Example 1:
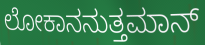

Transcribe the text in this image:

ಲೋಕಾನನುತ್ತಮಾನ್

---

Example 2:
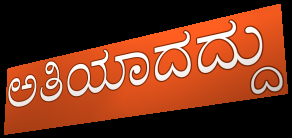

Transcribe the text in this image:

ಅತಿಯಾದದ್ದು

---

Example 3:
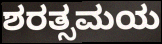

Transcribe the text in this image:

ಶರತ್ಸಮಯ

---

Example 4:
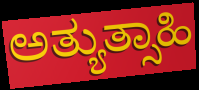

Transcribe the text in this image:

ಅತ್ಯುತ್ಸಾಹಿ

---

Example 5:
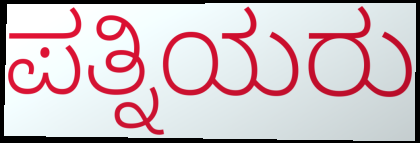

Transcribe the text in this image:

ಪತ್ನಿಯರು